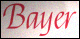
Bayer